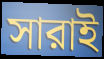
সারাই